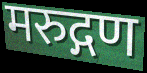
मरुद्गण